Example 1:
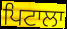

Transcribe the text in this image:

ਪਿਟਾਲਾ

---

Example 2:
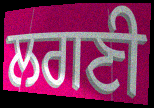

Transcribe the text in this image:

ਲਗਣੀ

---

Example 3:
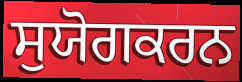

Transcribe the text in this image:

ਸੁਯੋਗਕਰਨ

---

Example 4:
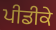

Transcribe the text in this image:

ਪੀਡੀਕੇ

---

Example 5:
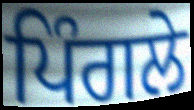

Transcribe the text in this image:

ਪਿੰਗਲੇ